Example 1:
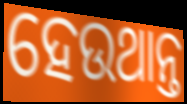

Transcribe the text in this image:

ହେଉଥାନ୍ତ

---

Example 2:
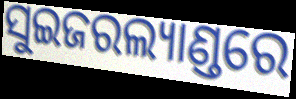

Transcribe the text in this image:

ସୁଇଜରଲ୍ୟାଣ୍ଡରେ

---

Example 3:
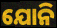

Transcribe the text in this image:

ଯୋନି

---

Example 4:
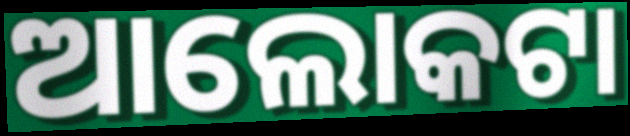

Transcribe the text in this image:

ଆଲୋକଟା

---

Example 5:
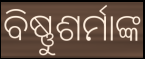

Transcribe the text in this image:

ବିଷ୍ଣୁଶର୍ମାଙ୍କ